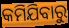
କମିଯିବାରୁ